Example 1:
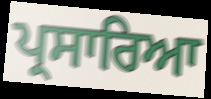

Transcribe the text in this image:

ਪ੍ਰਸਾਰਿਆ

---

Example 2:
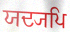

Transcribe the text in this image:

ਯਦ੍ਯਪਿ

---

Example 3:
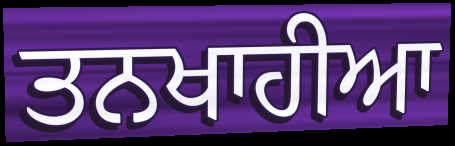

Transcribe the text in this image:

ਤਨਖਾਹੀਆ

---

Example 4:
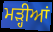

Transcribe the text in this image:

ਮੜ੍ਹੀਆਂ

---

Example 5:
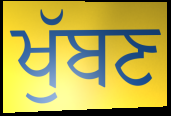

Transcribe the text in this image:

ਖੁੱਬਣ